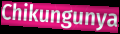
Chikungunya